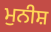
ਮੁਨੀਸ਼